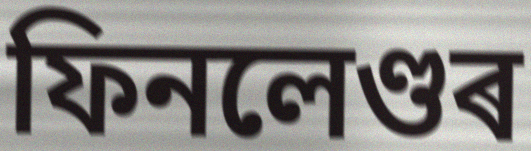
ফিনলেণ্ডৰ